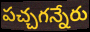
పచ్చగన్నేరు